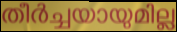
തീർച്ചയായുമില്ല